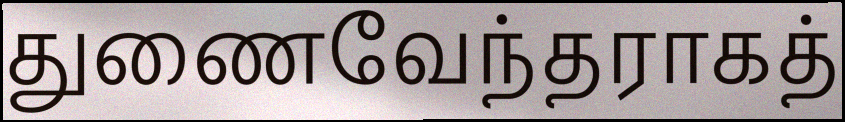
துணைவேந்தராகத்